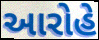
આરોહે